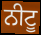
ਨੀਟੂ